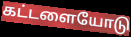
கட்டளையோடு